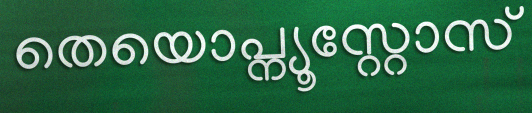
തെയൊപ്ന്യൂസ്റ്റോസ്